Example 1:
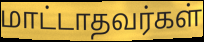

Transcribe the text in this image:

மாட்டாதவர்கள்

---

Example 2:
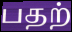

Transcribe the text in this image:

பதற்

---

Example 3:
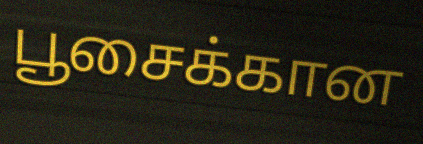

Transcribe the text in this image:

பூசைக்கான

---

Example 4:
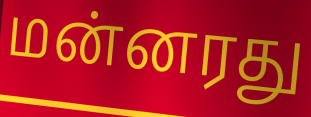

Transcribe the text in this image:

மன்னரது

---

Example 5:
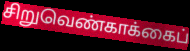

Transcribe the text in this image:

சிறுவெண்காக்கைப்